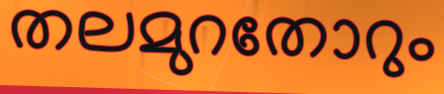
തലമുറതോറും